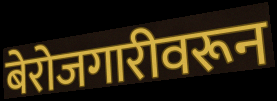
बेरोजगारीवरून